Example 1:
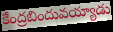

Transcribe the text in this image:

కేంద్రబిందువయ్యాడు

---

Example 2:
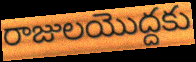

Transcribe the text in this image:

రాజులయొద్దకు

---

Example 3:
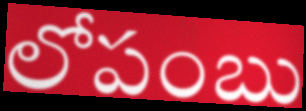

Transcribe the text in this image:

లోపంబు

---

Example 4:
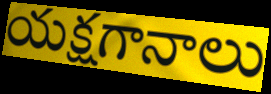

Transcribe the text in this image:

యక్షగానాలు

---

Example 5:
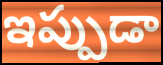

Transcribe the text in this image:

ఇప్పుడా